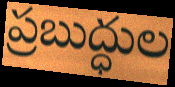
ప్రబుద్ధుల